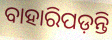
ବାହାରିପଡ଼ନ୍ତି